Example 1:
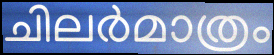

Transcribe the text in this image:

ചിലർമാത്രം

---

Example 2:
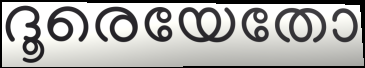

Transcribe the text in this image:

ദൂരെയേതോ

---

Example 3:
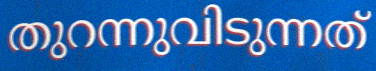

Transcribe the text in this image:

തുറന്നുവിടുന്നത്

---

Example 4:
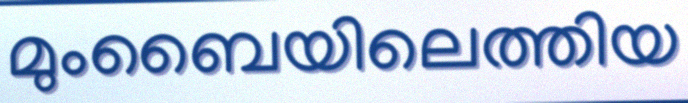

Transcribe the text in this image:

മുംബൈയിലെത്തിയ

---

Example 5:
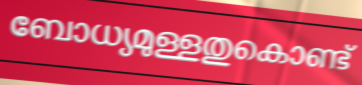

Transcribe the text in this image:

ബോധ്യമുള്ളതുകൊണ്ട്